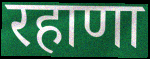
रहाणा